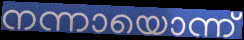
നന്നായൊന്ന്